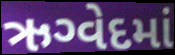
ઋગ્વેદમાં